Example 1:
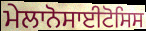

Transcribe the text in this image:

ਮੇਲਾਨੋਸਾਈਟੋਸਿਸ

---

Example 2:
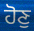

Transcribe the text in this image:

ਹੋਣੁ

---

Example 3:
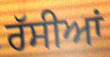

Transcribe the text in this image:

ਰੱਸੀਆਂ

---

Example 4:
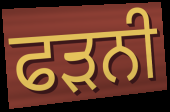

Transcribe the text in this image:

ਫੜਨੀ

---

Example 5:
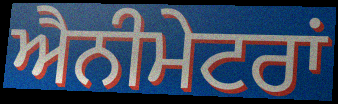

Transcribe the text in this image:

ਐਨੀਮੇਟਰਾਂ